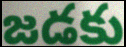
జడకు